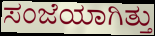
ಸಂಜೆಯಾಗಿತ್ತು